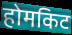
होमकिट